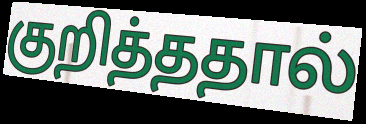
குறித்ததால்